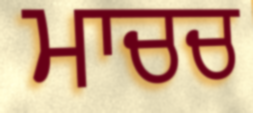
ਮਾਚਚ